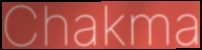
Chakma